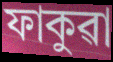
ফাকুৱা